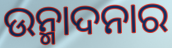
ଉନ୍ମାଦନାର